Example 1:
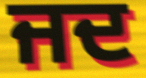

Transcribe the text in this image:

ਜਦ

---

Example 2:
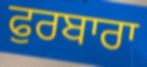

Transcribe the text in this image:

ਫੁਰਬਾਰਾ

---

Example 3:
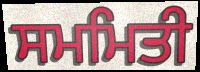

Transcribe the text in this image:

ਸਮਮਿਤੀ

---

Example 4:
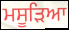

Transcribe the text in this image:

ਮਸੂੜਿਆ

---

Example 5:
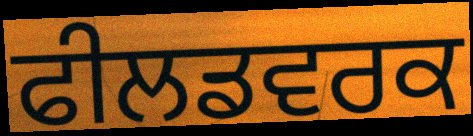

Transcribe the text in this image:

ਫੀਲਡਵਰਕ